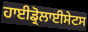
ਹਾਈਡ੍ਰੋਲਾਈਸੇਟਸ